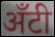
अँटी